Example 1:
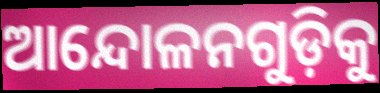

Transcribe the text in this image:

ଆନ୍ଦୋଳନଗୁଡ଼ିକୁ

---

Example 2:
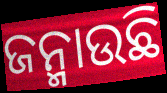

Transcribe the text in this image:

ଜନ୍ମାଉଛି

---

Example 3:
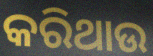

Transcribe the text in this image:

କରିଥାଉ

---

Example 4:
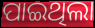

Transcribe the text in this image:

ପାଇଥିଲା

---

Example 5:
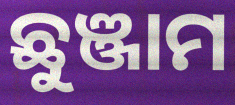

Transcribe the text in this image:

ଛୁଞ୍ଜାମ